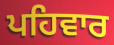
ਪਹਿਵਾਰ